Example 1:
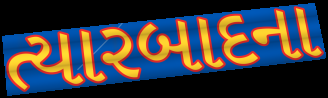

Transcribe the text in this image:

ત્યારબાદના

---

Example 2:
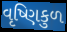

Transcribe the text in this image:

વૃષ્ણિકુળ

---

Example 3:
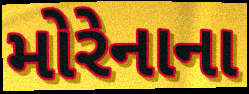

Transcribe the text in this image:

મોરેનાના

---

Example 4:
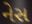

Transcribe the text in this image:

નેસ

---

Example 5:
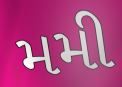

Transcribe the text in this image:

મમી